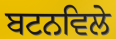
ਬਟਨਵਿਲੇ